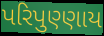
પરિપુણ્ણાય